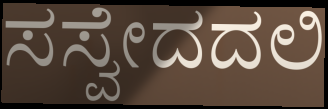
ಸಸ್ವೇದದಲಿ